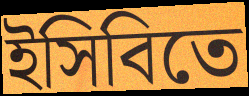
ইসিবিতে